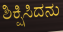
ಶಿಕ್ಷಿಸಿದನು